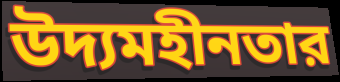
উদ্যমহীনতার